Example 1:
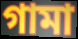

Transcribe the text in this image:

গামা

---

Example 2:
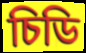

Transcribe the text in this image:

চিডি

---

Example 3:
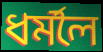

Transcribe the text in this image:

ধৰ্মলৈ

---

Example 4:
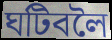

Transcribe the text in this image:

ঘটিবলৈ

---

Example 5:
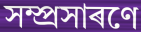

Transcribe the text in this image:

সম্প্ৰসাৰণে